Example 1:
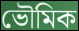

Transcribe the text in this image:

ভৌমিক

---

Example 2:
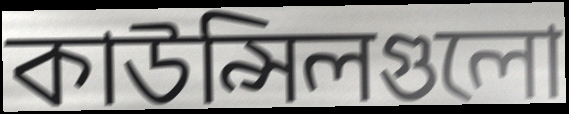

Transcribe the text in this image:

কাউন্সিলগুলো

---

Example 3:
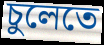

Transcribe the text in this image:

চুলেতে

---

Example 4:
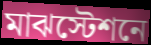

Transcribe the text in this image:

মাঝস্টেশনে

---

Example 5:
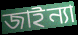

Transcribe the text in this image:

জাইন্যা